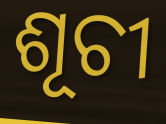
ଶୂଚୀ